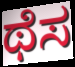
ಥೆಸ